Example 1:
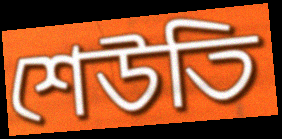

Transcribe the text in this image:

শেউতি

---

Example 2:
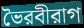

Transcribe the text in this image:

ভৈরবীরাগ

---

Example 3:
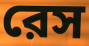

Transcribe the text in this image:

রেস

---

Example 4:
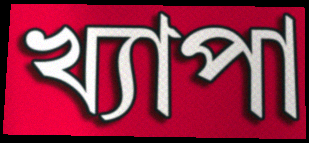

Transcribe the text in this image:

খ্যাপা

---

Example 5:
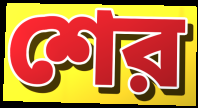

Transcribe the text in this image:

শের